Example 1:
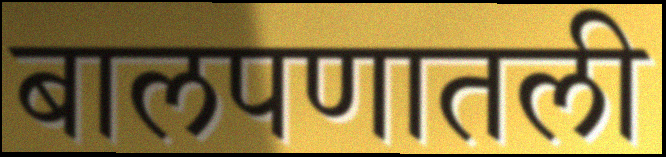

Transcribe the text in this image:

बालपणातली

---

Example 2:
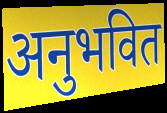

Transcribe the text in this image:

अनुभवित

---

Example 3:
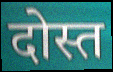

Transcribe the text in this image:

दोस्त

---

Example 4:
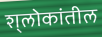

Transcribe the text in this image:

श्लोकांतील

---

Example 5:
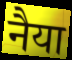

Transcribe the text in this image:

नैया